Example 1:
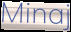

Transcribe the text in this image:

Minaj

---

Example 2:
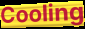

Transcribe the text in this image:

Cooling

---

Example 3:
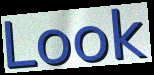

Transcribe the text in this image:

Look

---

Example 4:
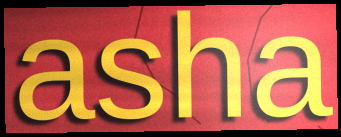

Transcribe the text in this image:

asha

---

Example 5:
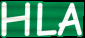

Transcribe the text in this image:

HLA